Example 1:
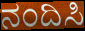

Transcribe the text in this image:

ನಂದಿಸಿ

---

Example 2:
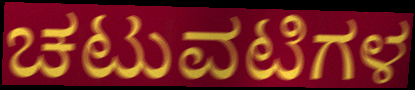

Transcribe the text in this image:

ಚಟುವಟಿಗಳ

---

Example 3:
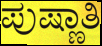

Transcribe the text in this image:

ಪುಷ್ಣಾತಿ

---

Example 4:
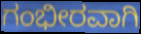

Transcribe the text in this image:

ಗಂಭೀರವಾಗಿ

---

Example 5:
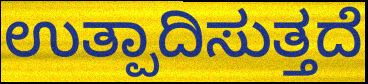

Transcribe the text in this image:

ಉತ್ಪಾದಿಸುತ್ತದೆ